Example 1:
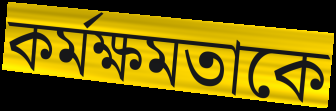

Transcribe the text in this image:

কর্মক্ষমতাকে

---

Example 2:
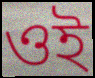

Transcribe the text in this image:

ওই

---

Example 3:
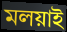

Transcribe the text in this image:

মলয়াই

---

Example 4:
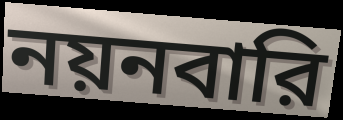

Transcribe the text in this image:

নয়নবারি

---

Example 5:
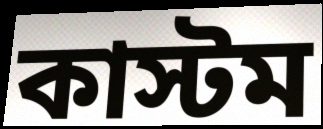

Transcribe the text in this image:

কাস্টম